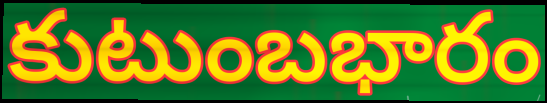
కుటుంబభారం